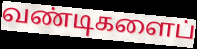
வண்டிகளைப்